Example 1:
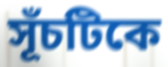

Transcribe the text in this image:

সূঁচটিকে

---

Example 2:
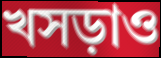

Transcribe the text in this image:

খসড়াও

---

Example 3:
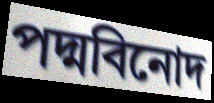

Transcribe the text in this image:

পদ্মবিনোদ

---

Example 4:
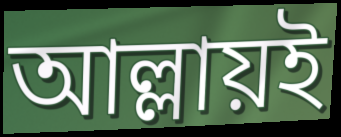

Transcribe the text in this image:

আল্লায়ই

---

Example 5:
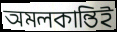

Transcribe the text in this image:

অমলকান্তিই